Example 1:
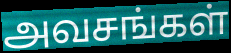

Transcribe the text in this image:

அவசங்கள்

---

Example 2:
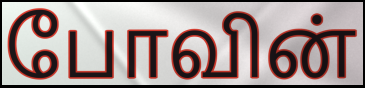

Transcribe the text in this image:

போவின்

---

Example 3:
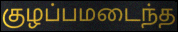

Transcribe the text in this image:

குழப்பமடைந்த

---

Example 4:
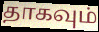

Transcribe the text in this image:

தாகவும்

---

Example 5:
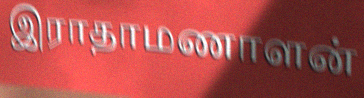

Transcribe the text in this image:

இராதாமணாளன்